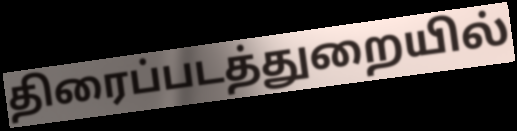
திரைப்படத்துறையில்